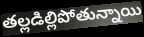
తల్లడిల్లిపోతున్నాయి